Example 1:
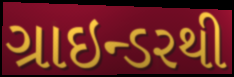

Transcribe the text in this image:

ગ્રાઇન્ડરથી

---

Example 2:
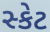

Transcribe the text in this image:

સ્કેટ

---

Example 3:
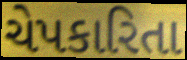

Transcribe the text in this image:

ચેપકારિતા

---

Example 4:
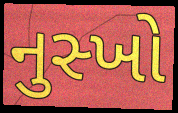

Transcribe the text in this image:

નુસ્ખો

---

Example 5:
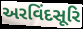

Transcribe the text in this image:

અરવિંદસૂરિ